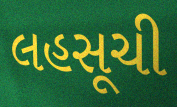
લહસૂચી